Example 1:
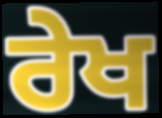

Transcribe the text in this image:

ਰੇਖ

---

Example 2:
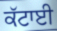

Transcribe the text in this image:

ਕੱਟਾਈ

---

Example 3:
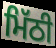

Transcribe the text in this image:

ਮਿੱਠੀ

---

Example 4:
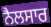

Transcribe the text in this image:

ਨੈਲਸਾਰ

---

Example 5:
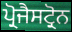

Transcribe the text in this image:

ਪ੍ਰੋਜੈਸਟ੍ਰੋਨ